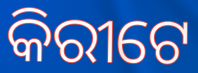
କିରୀଟେ